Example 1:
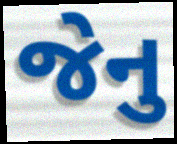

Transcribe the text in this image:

જેનુ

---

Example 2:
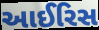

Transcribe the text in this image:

આઈરિસ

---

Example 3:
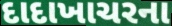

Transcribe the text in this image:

દાદાખાચરના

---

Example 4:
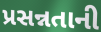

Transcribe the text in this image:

પ્રસન્નતાની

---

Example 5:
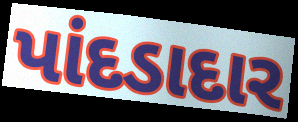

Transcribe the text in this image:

પાંદડાદાર